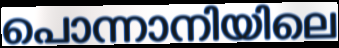
പൊന്നാനിയിലെ